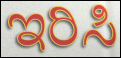
ಇರಿಸಿ